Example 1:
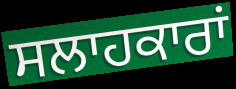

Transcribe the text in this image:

ਸਲਾਹਕਾਰਾਂ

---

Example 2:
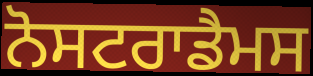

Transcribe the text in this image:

ਨੋਸਟਰਾਡੈਮਸ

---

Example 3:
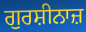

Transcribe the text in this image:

ਗੁਰਸ਼ੀਨਾਜ਼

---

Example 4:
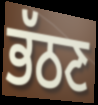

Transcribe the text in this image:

ਭੱਠਣ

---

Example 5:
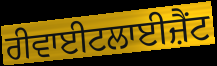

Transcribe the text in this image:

ਰੀਵਾਈਟਲਾਈਜ਼ੈਂਟ